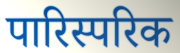
पारिस्परिक